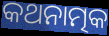
କଥନାତ୍ମକ